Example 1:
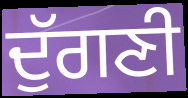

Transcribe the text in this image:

ਦੁੱਗਣੀ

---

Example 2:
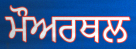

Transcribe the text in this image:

ਮੌਅਰਥਲ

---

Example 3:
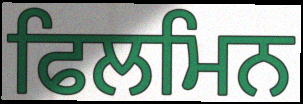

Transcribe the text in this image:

ਫਿਲਮਿਨ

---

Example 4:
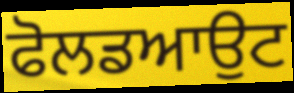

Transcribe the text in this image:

ਫੋਲਡਆਉਟ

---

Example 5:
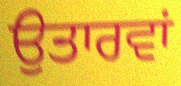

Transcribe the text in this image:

ਉਤਾਰਵਾਂ